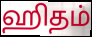
ஹிதம்